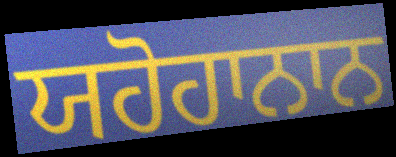
ਯਹੋਹਾਨਾਨ